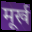
मूर्ख